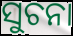
ସୁଚନା